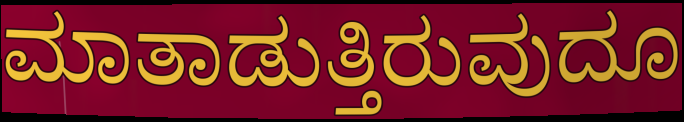
ಮಾತಾಡುತ್ತಿರುವುದೂ